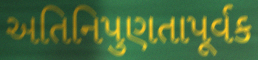
અતિનિપુણતાપૂર્વક